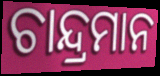
ଚାନ୍ଦ୍ରମାନ